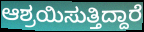
ಆಶ್ರಯಿಸುತ್ತಿದ್ದಾರೆ